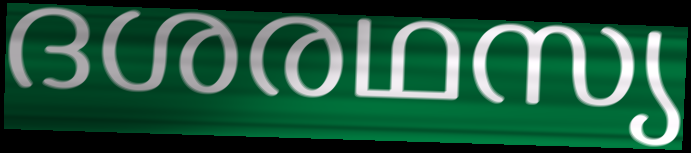
ദശരഥസ്യ